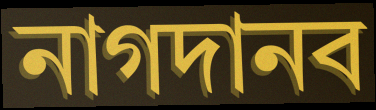
নাগদানব